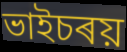
ভাইচৰয়